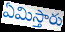
ఏమిస్తారు